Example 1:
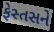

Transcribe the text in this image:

ફેસ્તસને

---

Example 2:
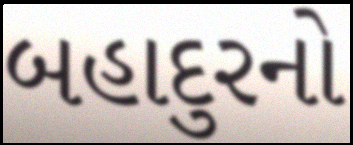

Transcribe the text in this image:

બહાદુરનો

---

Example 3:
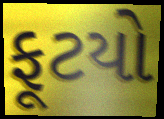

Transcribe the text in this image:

ફૂટયો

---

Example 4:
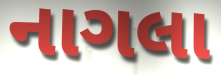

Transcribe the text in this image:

નાગલા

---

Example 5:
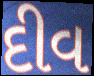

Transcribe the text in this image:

દીવ